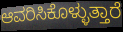
ಆವರಿಸಿಕೊಳ್ಳುತ್ತಾರೆ